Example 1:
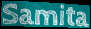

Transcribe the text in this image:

Samita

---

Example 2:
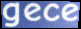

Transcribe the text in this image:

gece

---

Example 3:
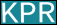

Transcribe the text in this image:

KPR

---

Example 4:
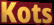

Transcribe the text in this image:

Kots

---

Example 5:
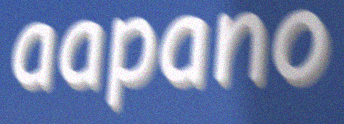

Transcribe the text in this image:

aapano